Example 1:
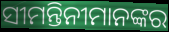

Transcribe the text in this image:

ସୀମନ୍ତିନୀମାନଙ୍କର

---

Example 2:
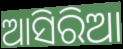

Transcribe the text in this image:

ଆସିରିଆ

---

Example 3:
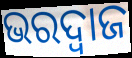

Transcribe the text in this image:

ଭରଦ୍ଵାଜ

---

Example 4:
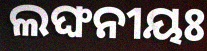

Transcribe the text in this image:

ଲଙ୍ଘନୀୟଃ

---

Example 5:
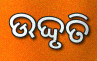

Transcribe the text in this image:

ଉଦ୍ଦୃତି